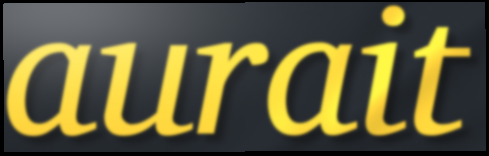
aurait